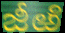
జీఱి